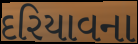
દરિયાવના